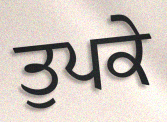
ਤੁਪਕੇ